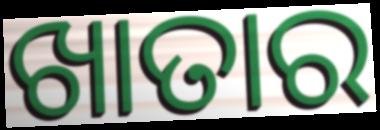
ଖାତାର